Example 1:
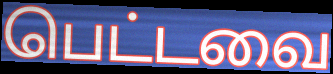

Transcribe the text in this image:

பெட்டவை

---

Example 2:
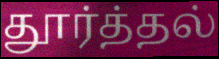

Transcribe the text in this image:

தூர்த்தல்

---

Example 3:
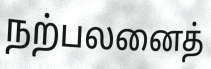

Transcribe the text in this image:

நற்பலனைத்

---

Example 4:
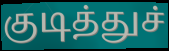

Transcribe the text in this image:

குடித்துச்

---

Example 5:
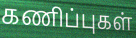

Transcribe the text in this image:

கணிப்புகள்